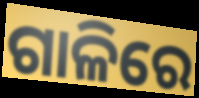
ଗାଳିରେ